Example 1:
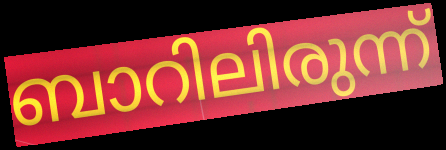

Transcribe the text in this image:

ബാറിലിരുന്ന്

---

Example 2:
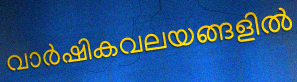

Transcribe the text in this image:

വാർഷികവലയങ്ങളിൽ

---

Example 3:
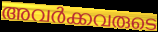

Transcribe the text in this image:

അവർക്കവരുടെ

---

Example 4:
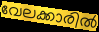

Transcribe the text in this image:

വേലക്കാരിൽ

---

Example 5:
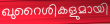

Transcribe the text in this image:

ഖുറൈശികളുമായി